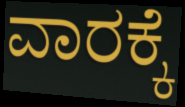
ವಾರಕ್ಕೆ